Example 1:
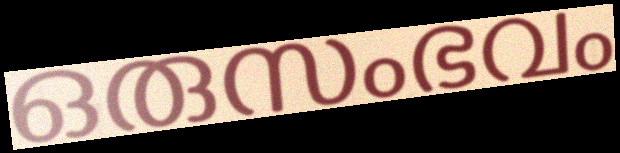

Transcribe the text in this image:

ഒരുസംഭവം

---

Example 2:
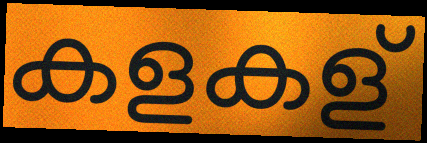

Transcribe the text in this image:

കളകള്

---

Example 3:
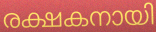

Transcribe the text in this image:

രക്ഷകനായി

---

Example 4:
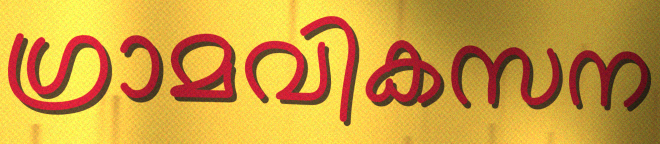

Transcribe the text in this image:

ഗ്രാമവികസന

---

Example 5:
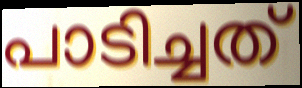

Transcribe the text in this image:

പാടിച്ചത്